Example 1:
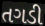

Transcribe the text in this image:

તગડી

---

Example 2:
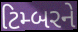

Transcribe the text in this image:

ટિમ્બરને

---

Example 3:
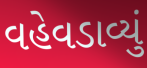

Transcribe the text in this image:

વહેવડાવ્યું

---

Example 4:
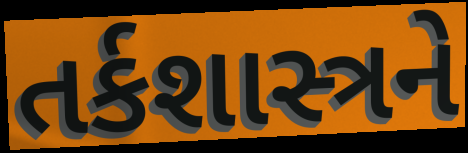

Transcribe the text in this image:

તર્કશાસ્ત્રને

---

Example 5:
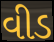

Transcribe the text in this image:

વીડ